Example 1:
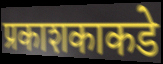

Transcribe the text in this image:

प्रकाशकाकडे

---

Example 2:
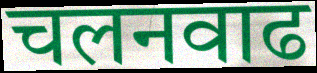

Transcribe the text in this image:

चलनवाढ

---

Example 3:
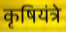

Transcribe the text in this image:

कृषियंत्रे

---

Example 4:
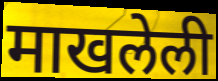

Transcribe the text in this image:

माखलेली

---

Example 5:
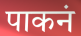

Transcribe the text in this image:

पाकनं